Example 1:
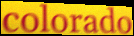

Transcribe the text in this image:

colorado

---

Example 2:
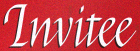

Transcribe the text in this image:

Invitee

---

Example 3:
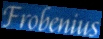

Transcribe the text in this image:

Frobenius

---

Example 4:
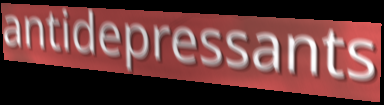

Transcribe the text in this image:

antidepressants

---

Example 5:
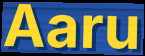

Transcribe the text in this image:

Aaru